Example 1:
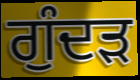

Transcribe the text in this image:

ਗੁੰਦੜ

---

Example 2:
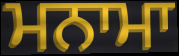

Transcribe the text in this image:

ਮਨਾਮਾ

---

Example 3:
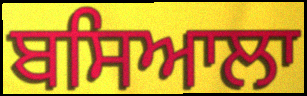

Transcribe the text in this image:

ਬਸਿਆਲਾ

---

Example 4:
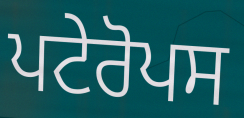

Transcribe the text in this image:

ਪਟੇਰੋਪਸ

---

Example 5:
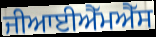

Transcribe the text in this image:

ਜੀਆਈਐੱਮਐੱਸ